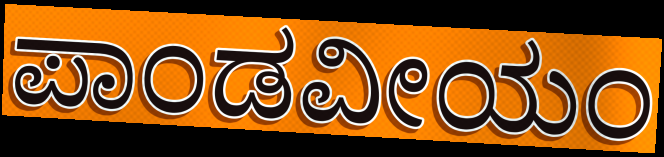
ಪಾಂಡವೀಯಂ